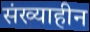
संख्याहीन